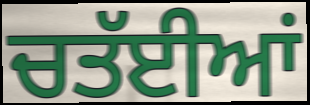
ਚਤੱਈਆਂ